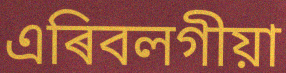
এৰিবলগীয়া